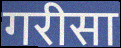
गरीसा